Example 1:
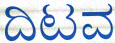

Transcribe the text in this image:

ದಿಟವ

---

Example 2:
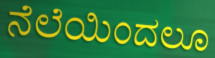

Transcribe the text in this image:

ನೆಲೆಯಿಂದಲೂ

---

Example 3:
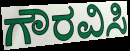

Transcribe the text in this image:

ಗೌರವಿಸಿ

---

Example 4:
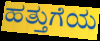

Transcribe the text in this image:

ಹತ್ತುಗೆಯ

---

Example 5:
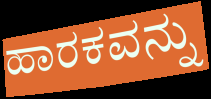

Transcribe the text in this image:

ಹಾರಕವನ್ನು